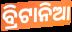
ବ୍ରିଟାନିଆ